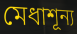
মেধাশূন্য